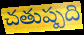
చతుష్పది